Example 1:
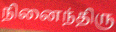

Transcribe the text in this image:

நினைந்திரு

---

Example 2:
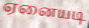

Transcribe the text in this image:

ஏனையடி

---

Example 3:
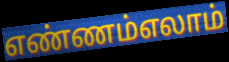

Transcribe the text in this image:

எண்ணம்எலாம்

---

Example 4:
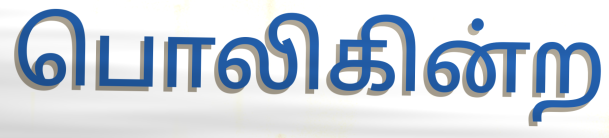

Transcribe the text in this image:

பொலிகின்ற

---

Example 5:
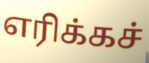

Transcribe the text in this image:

எரிக்கச்